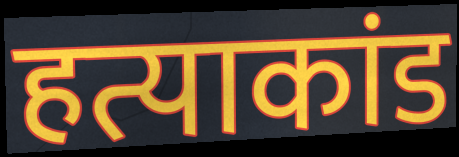
हत्याकांड